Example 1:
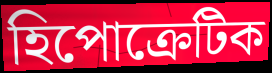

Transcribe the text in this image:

হিপোক্রেটিক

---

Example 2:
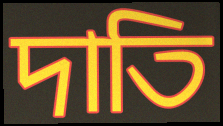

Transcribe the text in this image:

দাতি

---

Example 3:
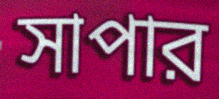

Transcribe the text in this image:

সাপার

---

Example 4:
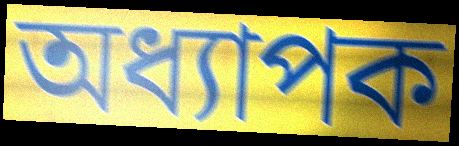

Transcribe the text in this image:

অধ্যাপক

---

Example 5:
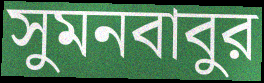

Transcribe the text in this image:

সুমনবাবুর